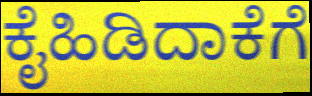
ಕೈಹಿಡಿದಾಕೆಗೆ